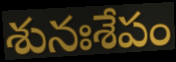
శునఃశేపం